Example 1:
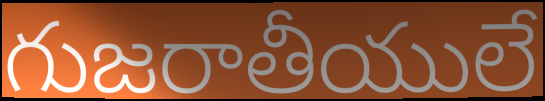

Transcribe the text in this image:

గుజరాతీయులే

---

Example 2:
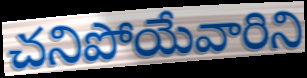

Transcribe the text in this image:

చనిపోయేవారిని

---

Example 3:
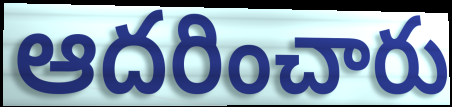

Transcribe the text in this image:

ఆదరించారు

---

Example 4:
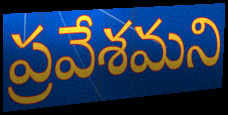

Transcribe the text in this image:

ప్రవేశమని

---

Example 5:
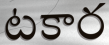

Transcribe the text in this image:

టకార